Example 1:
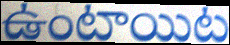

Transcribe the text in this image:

ఉంటాయిట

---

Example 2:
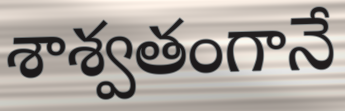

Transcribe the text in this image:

శాశ్వతంగానే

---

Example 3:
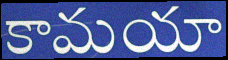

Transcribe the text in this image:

కామయా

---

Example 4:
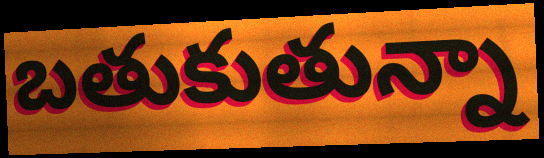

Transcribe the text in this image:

బతుకుతున్నా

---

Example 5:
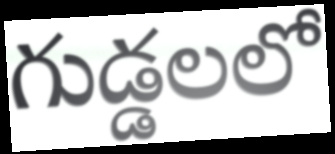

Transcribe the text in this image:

గుడ్డలలో